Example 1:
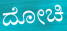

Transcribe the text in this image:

ದೋಚಿ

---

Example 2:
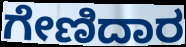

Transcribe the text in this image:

ಗೇಣಿದಾರ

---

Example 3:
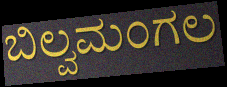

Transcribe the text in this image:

ಬಿಲ್ವಮಂಗಲ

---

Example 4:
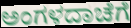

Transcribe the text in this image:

ಅಂಗಳದಾಚೆಗೆ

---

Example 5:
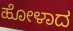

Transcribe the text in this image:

ಹೋಳಾದ